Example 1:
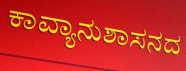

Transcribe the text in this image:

ಕಾವ್ಯಾನುಶಾಸನದ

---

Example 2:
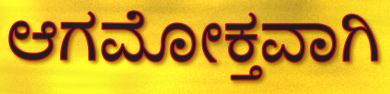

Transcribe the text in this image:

ಆಗಮೋಕ್ತವಾಗಿ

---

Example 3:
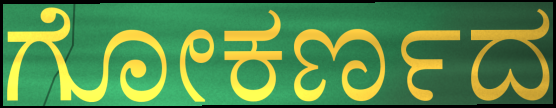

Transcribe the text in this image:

ಗೋಕರ್ಣದ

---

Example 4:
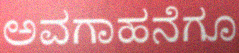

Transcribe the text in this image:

ಅವಗಾಹನೆಗೂ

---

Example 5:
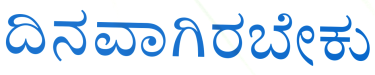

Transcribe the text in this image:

ದಿನವಾಗಿರಬೇಕು